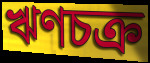
ঋণচক্র